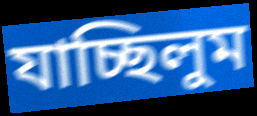
যাচ্ছিলুম